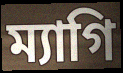
ম্যাগি